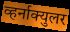
व्हर्नाक्युलर